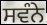
ਸਵੰਨੇ